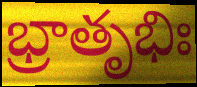
భ్రాతృభిః